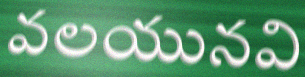
వలయునవి